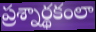
ప్రశ్నార్థకంలా